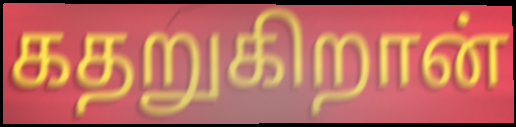
கதறுகிறான்